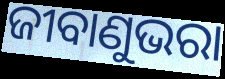
ଜୀବାଣୁଭରା